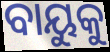
ବାୟୁକୁ